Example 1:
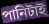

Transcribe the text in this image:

পানিটাই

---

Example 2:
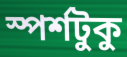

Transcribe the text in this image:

স্পর্শটুকু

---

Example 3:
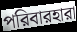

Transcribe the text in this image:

পরিবারহারা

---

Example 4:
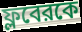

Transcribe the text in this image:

ফ্লবেরকে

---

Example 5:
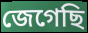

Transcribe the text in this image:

জেগেছি